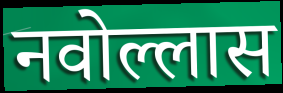
नवोल्लास